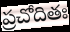
ప్రచోదితః